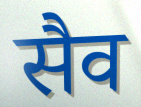
सैव